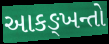
આકઙ્ખન્તો